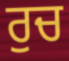
ਰੁਚ